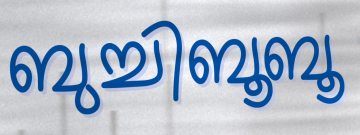
ബുച്ചിബൂബൂ